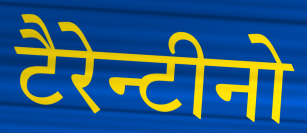
टैरेन्टीनो